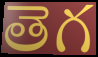
తెగ